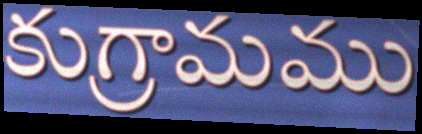
కుగ్రామము